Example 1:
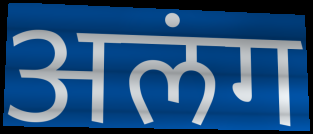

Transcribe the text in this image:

अलंग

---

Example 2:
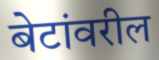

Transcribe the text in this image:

बेटांवरील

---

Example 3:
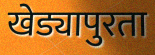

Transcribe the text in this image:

खेड्यापुरता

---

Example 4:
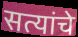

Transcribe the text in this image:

सत्यांचे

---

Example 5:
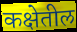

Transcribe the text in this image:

कक्षेतील